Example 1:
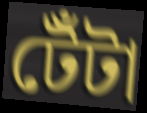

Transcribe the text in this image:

টেঁটা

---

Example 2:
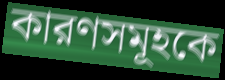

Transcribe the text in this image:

কারণসমূহকে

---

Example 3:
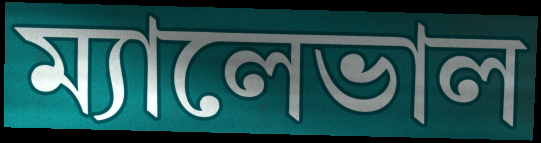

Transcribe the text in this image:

ম্যালেভাল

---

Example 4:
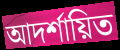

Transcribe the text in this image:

আদর্শায়িত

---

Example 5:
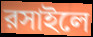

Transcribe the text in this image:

রসাইলে